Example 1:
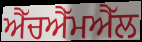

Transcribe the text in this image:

ਐੱਚਐੱਮਐੱਲ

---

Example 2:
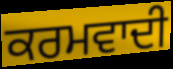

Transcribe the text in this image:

ਕਰਮਵਾਦੀ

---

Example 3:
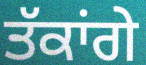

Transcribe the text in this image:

ਤੱਕਾਂਗੇ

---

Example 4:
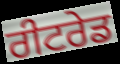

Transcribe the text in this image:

ਰੀਟਰੇਡ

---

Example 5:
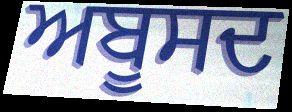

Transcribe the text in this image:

ਅਬੂਸਦ